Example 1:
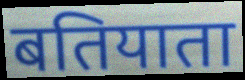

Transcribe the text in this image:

बतियाता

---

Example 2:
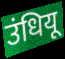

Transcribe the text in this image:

उंधियू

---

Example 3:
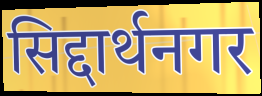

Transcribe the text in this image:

सिद्दार्थनगर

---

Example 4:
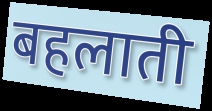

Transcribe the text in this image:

बहलाती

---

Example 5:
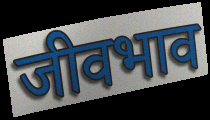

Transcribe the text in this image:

जीवभाव